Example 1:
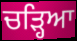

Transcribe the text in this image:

ਚਡ਼੍ਹਿਆ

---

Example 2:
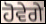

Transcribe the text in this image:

ਹੋਵੇਗੇ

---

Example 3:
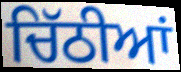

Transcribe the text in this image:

ਚਿੱਠੀਆਂ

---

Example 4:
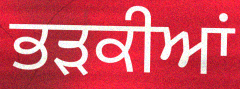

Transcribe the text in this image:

ਭੜਕੀਆਂ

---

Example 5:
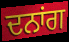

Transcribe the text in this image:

ਦਨਾਂਗ